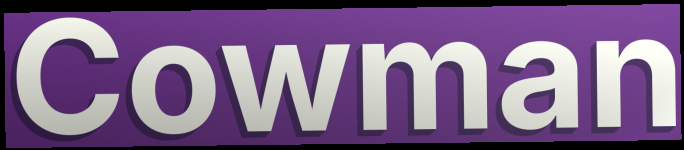
Cowman